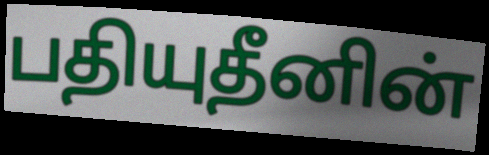
பதியுதீனின்